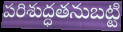
పరిశుద్ధతనుబట్టి